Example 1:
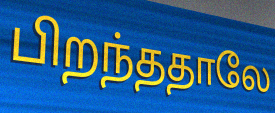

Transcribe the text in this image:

பிறந்ததாலே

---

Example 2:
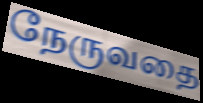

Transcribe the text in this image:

நேருவதை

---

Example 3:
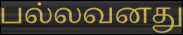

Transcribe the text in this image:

பல்லவனது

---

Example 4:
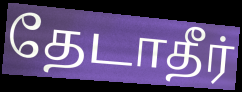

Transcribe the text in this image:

தேடாதீர்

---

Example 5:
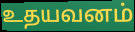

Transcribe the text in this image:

உதயவனம்